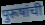
पुरूषांची